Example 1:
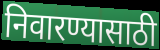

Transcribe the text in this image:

निवारण्यासाठी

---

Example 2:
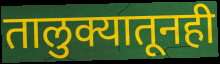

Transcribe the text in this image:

तालुक्यातूनही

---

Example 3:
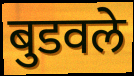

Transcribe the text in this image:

बुडवले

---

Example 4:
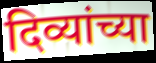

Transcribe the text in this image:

दिव्यांच्या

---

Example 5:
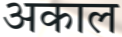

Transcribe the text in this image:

अकाल